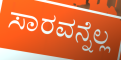
ಸಾರವನ್ನೆಲ್ಲ